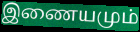
இணையமும்